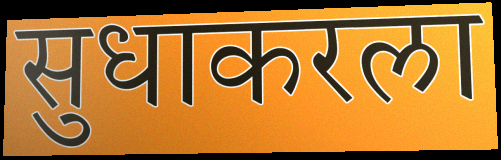
सुधाकरला